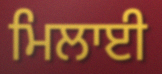
ਮਿਲਾਈ